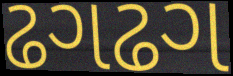
ઢગઢગ